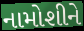
નામોશીને